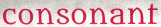
consonant